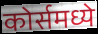
कोर्समध्ये